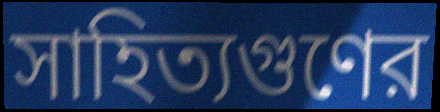
সাহিত্যগুণের